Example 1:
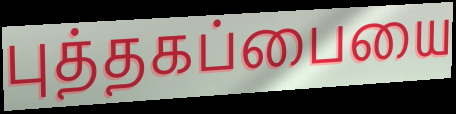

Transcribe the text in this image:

புத்தகப்பையை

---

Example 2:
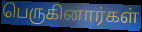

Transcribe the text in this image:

பெருகினார்கள்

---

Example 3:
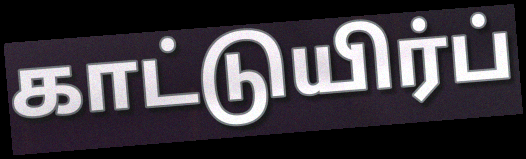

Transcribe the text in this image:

காட்டுயிர்ப்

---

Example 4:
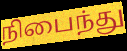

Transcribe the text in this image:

நிபைந்து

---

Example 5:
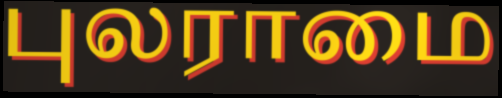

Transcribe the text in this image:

புலராமை